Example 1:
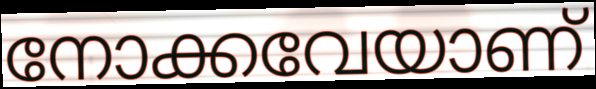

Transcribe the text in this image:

നോക്കവേയാണ്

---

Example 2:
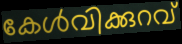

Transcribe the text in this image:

കേൾവിക്കുറവ്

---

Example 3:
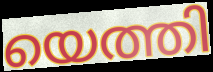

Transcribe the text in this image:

യെത്തി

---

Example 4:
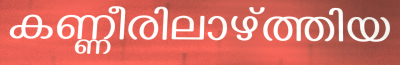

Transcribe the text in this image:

കണ്ണീരിലാഴ്ത്തിയ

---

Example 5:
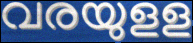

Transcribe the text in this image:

വരയുളള